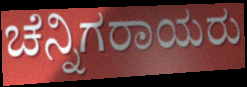
ಚೆನ್ನಿಗರಾಯರು